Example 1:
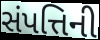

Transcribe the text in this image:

સંપત્તિની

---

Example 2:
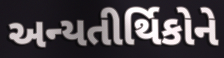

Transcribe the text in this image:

અન્યતીર્થિકોને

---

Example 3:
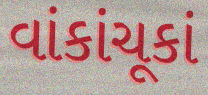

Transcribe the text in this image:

વાંકાંચૂકાં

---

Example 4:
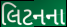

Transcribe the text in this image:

લિટનના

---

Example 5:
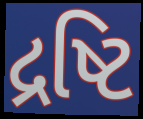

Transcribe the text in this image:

દ્રષ્ટિ